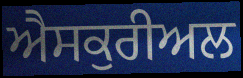
ਐਸਕੁਰੀਅਲ